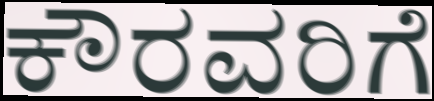
ಕೌರವರಿಗೆ